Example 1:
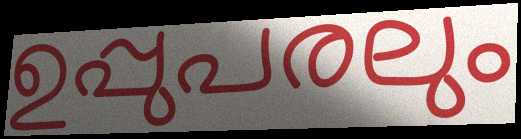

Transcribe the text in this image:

ഉപ്പുപരലും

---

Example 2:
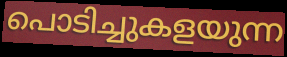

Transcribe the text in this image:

പൊടിച്ചുകളയുന്ന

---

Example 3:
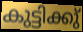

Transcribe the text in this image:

കുട്ടിക്കു്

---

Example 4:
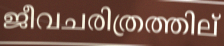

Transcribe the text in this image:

ജീവചരിത്രത്തില്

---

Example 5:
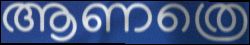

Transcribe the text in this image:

ആണത്രെ